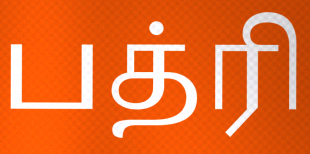
பத்ரி